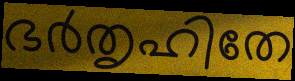
ഭർതൃഹിതേ